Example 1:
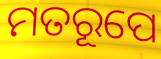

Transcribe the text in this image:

ମତରୂପେ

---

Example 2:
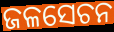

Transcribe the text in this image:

ଜଳସେଚନ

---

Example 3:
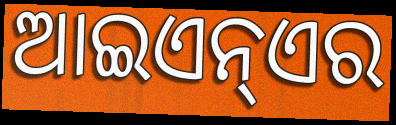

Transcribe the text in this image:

ଆଇଏନ୍ଏର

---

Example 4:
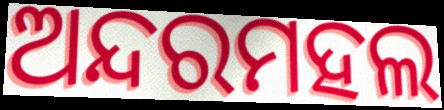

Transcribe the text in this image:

ଅନ୍ଦରମହଲ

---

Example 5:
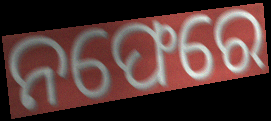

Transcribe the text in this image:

ନଫେରେ